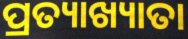
ପ୍ରତ୍ୟାଖ୍ୟାତା